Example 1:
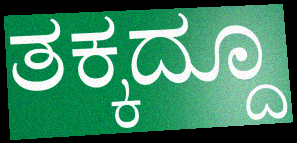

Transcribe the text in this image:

ತಕ್ಕದ್ದೂ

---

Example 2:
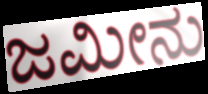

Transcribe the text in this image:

ಜಮೀನು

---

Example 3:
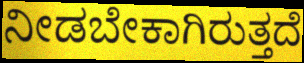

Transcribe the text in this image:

ನೀಡಬೇಕಾಗಿರುತ್ತದೆ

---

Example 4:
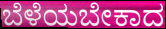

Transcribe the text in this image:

ಬೆಳೆಯಬೇಕಾದ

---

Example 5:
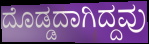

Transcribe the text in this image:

ದೊಡ್ಡದಾಗಿದ್ದವು